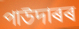
পাউদাৰৰ